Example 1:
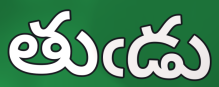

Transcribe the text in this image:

తుఁడు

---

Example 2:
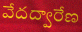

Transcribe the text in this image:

వేదద్వారేణ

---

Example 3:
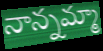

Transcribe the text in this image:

నాన్నమ్మా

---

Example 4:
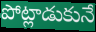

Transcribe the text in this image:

పోట్లాడుకునే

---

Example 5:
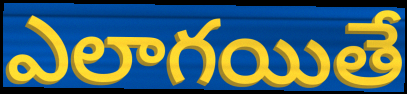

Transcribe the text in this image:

ఎలాగయితే